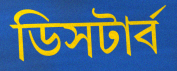
ডিসটার্ব